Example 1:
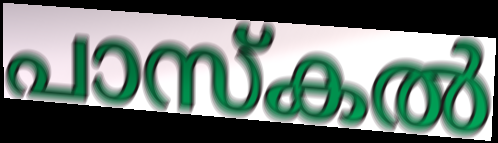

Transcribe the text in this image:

പാസ്കൽ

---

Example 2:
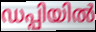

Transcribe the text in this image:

ഡപ്പിയിൽ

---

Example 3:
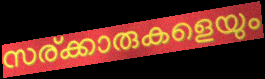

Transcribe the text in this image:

സര്ക്കാരുകളെയും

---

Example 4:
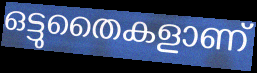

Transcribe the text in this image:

ഒട്ടുതൈകളാണ്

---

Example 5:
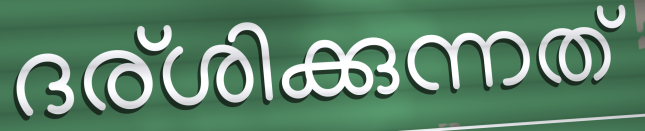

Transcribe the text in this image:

ദര്ശിക്കുന്നത്